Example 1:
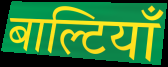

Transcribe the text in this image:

बाल्टियाँ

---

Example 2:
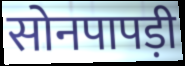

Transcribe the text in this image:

सोनपापड़ी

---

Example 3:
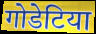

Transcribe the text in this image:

गोडेटिया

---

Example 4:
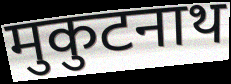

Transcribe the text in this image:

मुकुटनाथ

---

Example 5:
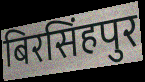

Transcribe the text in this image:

बिरसिंहपुर